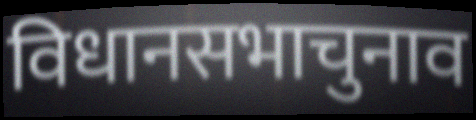
विधानसभाचुनाव